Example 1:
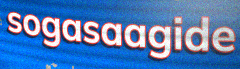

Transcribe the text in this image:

sogasaagide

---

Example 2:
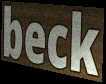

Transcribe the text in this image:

beck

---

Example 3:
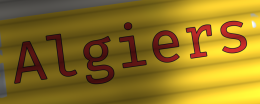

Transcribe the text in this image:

Algiers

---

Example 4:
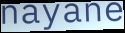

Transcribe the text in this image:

nayane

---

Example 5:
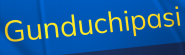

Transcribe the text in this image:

Gunduchipasi